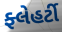
ફ્લેહર્ટી